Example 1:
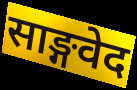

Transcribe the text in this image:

साङ्गवेद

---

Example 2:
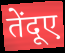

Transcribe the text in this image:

तेंदूए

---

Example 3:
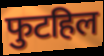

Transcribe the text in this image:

फुटहिल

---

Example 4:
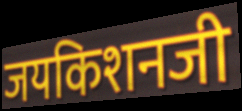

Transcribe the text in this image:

जयकिशनजी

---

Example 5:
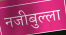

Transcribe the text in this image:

नजीबुल्ला